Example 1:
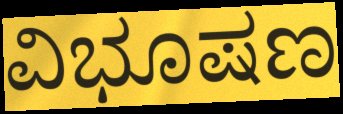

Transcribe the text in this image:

ವಿಭೂಷಣ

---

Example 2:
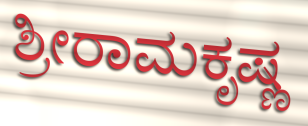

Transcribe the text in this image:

ಶ್ರೀರಾಮಕೃಷ್ಣ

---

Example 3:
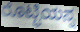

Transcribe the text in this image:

ರೊಟ್ಟಿಯನ್ನ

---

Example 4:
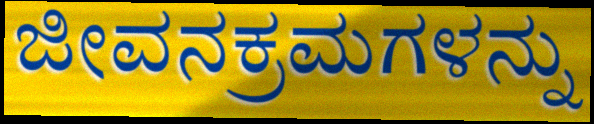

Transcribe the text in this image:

ಜೀವನಕ್ರಮಗಳನ್ನು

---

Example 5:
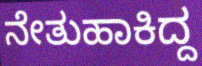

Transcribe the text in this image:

ನೇತುಹಾಕಿದ್ದ